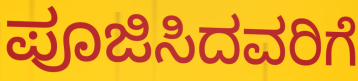
ಪೂಜಿಸಿದವರಿಗೆ